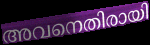
അവനെതിരായി